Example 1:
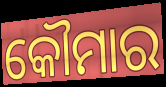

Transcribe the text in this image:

କୌମାର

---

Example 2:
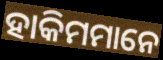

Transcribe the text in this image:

ହାକିମମାନେ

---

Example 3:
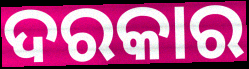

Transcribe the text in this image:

ଦରକାର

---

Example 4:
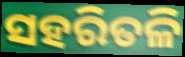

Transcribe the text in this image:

ସହରିତଳି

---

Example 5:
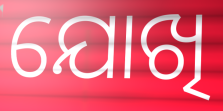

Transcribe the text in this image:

ଯୋଖି